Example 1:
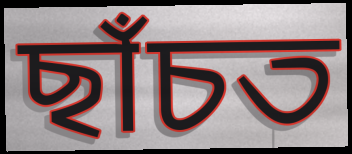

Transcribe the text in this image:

ছাঁচত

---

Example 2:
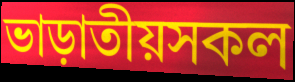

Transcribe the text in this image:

ভাড়াতীয়সকল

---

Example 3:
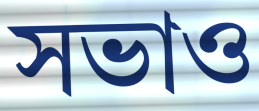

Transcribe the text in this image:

সভাও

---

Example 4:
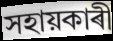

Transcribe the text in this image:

সহায়কাৰী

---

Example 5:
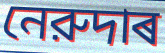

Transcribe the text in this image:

নেৰুদাৰ